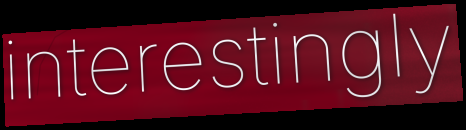
interestingly